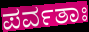
ಪರ್ವತಾಃ